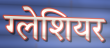
ग्लेशियर